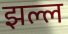
झल्ल